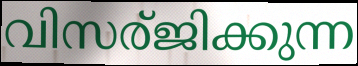
വിസര്ജിക്കുന്ന